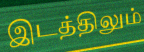
இடத்திலும்